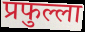
प्रफुल्ला